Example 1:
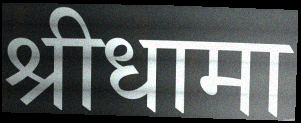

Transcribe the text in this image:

श्रीधामा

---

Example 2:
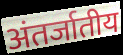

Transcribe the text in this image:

अंतर्जातीय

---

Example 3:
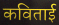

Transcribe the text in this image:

कविताई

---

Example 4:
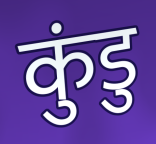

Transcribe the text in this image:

कुंडु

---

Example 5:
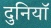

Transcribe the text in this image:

दुनियॉ